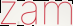
zam